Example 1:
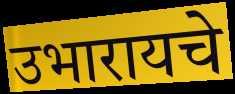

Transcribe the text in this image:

उभारायचे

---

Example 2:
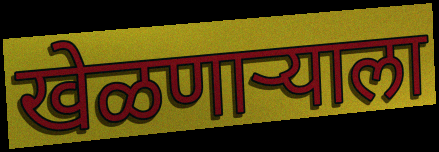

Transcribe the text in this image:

खेळणाऱ्याला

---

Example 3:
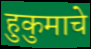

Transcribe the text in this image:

हुकुमाचे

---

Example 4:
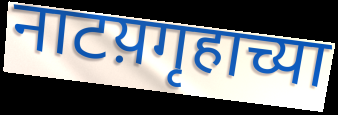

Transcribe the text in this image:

नाटय़गृहाच्या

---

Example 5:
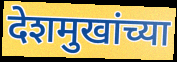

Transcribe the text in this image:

देशमुखांच्या